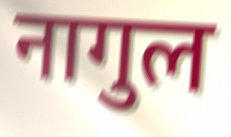
नागुल